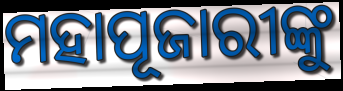
ମହାପୂଜାରୀଙ୍କୁ